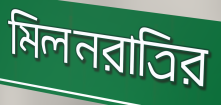
মিলনরাত্রির